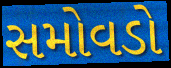
સમોવડો